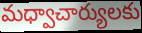
మధ్వాచార్యులకు